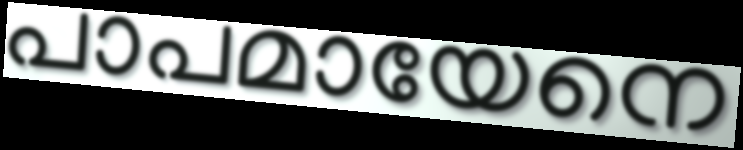
പാപമായേനെ